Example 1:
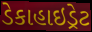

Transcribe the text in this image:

ડેકાહાઇડ્રેટ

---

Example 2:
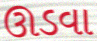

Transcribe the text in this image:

ઊડવા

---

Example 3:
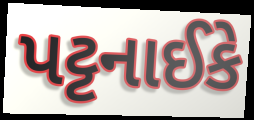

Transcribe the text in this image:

પટ્ટનાઈકે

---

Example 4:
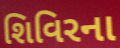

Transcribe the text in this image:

શિવિરના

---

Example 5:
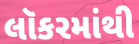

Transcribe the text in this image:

લૉકરમાંથી